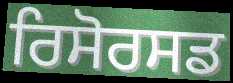
ਰਿਸੋਰਸਡ